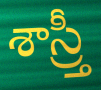
శాస్ర్తీ